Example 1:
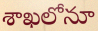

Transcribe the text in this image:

శాఖలోనూ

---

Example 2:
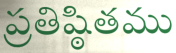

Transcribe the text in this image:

ప్రతిష్ఠితము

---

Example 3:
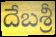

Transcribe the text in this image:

దేబశ్రీ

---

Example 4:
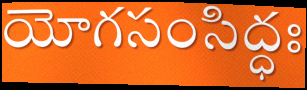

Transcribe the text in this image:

యోగసంసిద్ధః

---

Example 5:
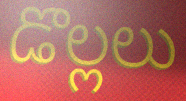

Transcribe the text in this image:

డొల్లలు